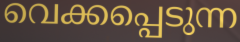
വെക്കപ്പെടുന്ന